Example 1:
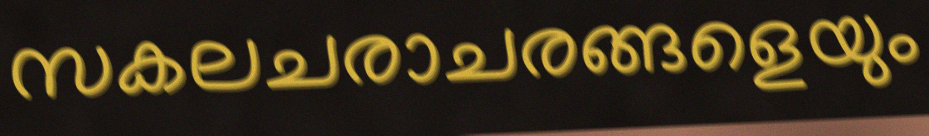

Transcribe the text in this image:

സകലചരാചരങ്ങളെയും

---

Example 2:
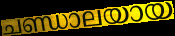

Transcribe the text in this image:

ചണ്ഡാലയായ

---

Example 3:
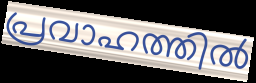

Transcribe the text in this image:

പ്രവാഹത്തിൽ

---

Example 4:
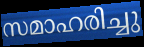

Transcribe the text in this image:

സമാഹരിച്ചു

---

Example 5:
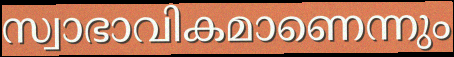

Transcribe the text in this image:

സ്വാഭാവികമാണെന്നും